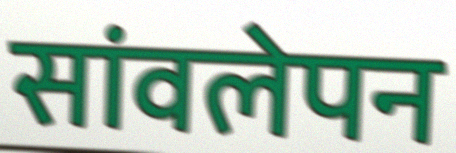
सांवलेपन